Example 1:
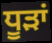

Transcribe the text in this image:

ਧੂੜਾਂ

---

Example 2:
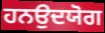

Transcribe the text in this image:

ਹਨਉਦਯੋਗ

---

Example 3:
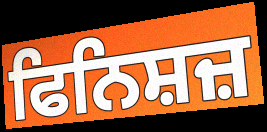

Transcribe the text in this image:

ਫਿਨਿਸ਼ਜ਼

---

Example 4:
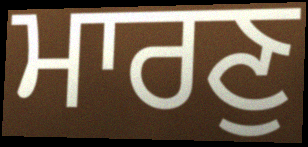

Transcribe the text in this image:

ਮਾਰਣੁ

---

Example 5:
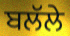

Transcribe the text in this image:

ਬਲੱਲੇ